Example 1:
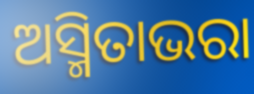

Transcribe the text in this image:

ଅସ୍ମିତାଭରା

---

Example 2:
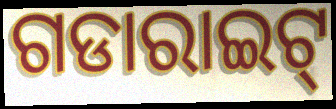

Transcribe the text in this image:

ଗଡାରାଇଟ୍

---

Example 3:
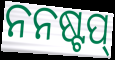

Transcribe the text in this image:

ନନଷ୍ଟପ୍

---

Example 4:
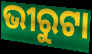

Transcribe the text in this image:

ଭୀରୁଟା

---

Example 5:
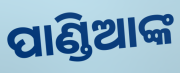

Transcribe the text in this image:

ପାଣ୍ଡିଆଙ୍କ